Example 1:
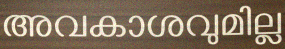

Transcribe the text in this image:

അവകാശവുമില്ല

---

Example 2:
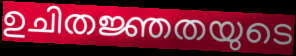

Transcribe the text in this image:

ഉചിതജ്ഞതയുടെ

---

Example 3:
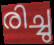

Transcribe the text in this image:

രിച്ചു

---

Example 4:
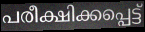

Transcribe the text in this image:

പരീക്ഷിക്കപ്പെട്ട്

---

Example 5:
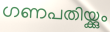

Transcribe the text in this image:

ഗണപതിയ്ക്കും